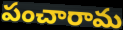
పంచారామ